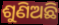
ଶୁଣିଅଛି